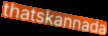
thatskannada